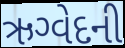
ઋગ્વેદની